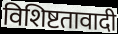
विशिष्टतावादी